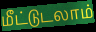
மீட்டுடலாம்